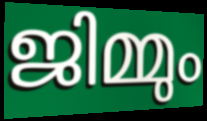
ജിമ്മും